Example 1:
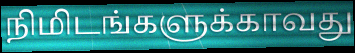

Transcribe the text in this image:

நிமிடங்களுக்காவது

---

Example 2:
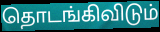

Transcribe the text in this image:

தொடங்கிவிடும்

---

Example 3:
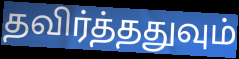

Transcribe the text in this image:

தவிர்த்ததுவும்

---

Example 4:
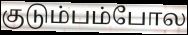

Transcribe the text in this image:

குடும்பம்போல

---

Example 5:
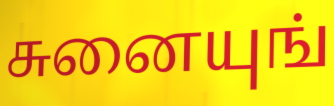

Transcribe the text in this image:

சுனையுங்